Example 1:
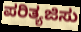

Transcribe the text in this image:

ಪರಿತ್ಯಜಿಸು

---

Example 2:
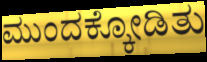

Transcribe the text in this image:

ಮುಂದಕ್ಕೋಡಿತು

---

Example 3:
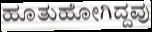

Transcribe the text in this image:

ಹೂತುಹೋಗಿದ್ದವು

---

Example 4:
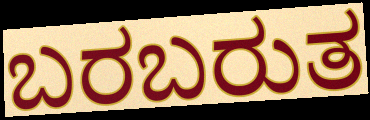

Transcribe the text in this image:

ಬರಬರುತ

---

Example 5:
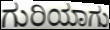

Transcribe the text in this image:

ಗುರಿಯಾಗು